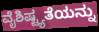
ವೈಶಿಷ್ಟ್ಯತೆಯನ್ನು